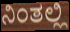
ನಿಂತಲ್ಲಿ